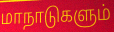
மாநாடுகளும்